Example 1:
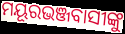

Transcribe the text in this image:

ମୟୂରଭଞ୍ଜବାସୀଙ୍କୁ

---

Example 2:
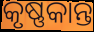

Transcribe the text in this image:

କୃଷ୍ଣକାନ୍ତ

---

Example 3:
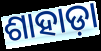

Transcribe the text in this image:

ଶାହାଡ଼ା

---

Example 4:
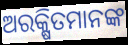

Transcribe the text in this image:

ଅରକ୍ଷିତମାନଙ୍କ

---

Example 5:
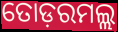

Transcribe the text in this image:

ତୋଡ଼ରମଲ୍ଲ